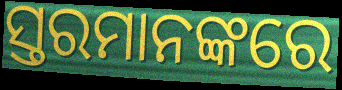
ସ୍ତରମାନଙ୍କରେ